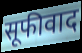
सूफीवाद